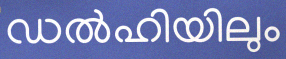
ഡൽഹിയിലും